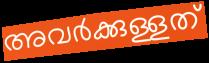
അവർക്കുള്ളത്